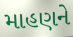
માહણને